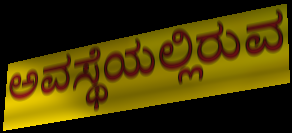
ಅವಸ್ಥೆಯಲ್ಲಿರುವ